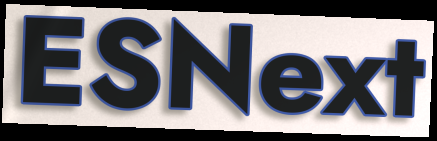
ESNext